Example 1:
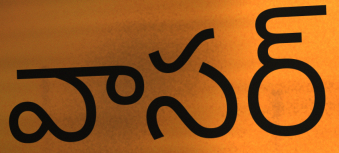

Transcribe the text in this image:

వాసర్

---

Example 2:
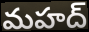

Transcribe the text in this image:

మహద్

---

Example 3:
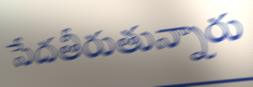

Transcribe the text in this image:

సేదతీరుతున్నారు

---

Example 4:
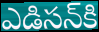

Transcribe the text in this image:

ఎడిసన్‌కి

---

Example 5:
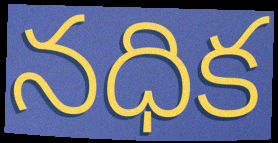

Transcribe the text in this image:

నధిక